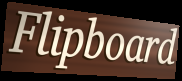
Flipboard